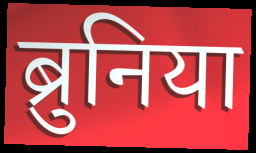
ब्रुनिया